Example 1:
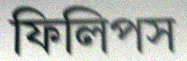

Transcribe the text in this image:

ফিলিপস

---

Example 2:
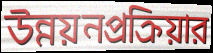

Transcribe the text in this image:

উন্নয়নপ্রক্রিয়ার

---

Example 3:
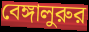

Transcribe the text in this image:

বেঙ্গালুরুর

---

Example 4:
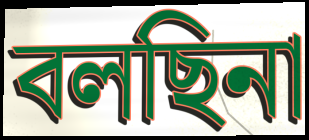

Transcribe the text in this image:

বলছিনা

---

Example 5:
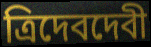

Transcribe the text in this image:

ত্রিদেবদেবী